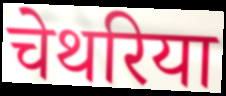
चेथरिया